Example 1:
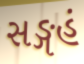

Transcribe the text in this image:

સઙ્ગહં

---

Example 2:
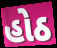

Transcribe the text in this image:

હોઠ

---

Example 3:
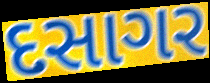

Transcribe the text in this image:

દસાગર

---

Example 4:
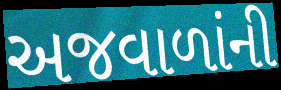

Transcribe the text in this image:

અજવાળાંની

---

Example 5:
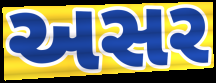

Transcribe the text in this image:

અસર